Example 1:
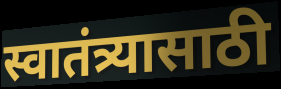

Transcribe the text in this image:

स्वातंत्र्यासाठी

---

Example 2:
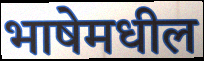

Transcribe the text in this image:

भाषेमधील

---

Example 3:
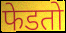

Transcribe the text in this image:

फेडतो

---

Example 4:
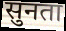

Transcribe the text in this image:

सुनता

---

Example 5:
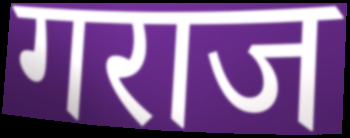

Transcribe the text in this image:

गराज